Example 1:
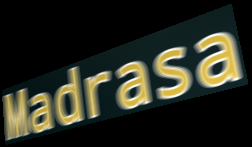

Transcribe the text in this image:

Madrasa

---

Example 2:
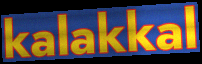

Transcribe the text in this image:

kalakkal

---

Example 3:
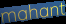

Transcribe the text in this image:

mahant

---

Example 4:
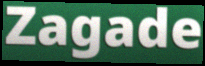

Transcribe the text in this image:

Zagade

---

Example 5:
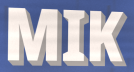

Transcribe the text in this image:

MIK